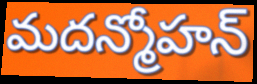
మదన్మోహన్